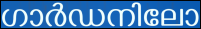
ഗാർഡനിലോ